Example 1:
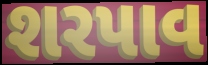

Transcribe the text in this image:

શરપાવ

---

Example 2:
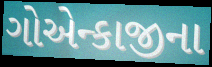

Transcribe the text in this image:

ગોએન્કાજીના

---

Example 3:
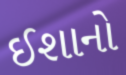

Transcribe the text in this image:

ઈશાનો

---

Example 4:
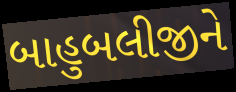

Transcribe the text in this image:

બાહુબલીજીને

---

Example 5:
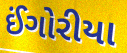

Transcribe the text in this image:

ઈંગોરીયા